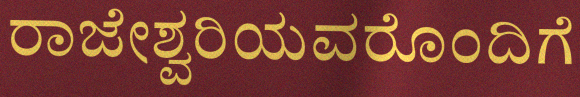
ರಾಜೇಶ್ವರಿಯವರೊಂದಿಗೆ